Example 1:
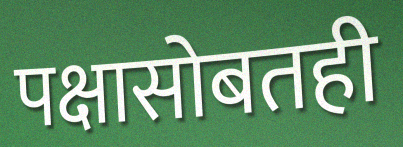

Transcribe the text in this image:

पक्षासोबतही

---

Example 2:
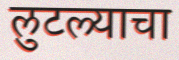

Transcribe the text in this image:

लुटल्याचा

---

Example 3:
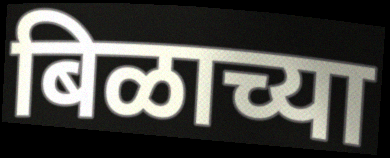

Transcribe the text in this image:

बिळाच्या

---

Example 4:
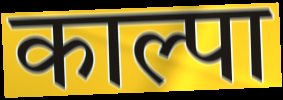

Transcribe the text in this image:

काल्पा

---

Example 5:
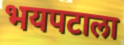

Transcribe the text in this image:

भयपटाला